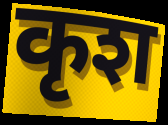
कृश